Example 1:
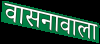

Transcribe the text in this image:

वासनावाला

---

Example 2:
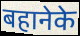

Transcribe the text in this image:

बहानेके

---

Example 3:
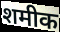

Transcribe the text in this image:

शमीक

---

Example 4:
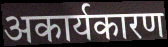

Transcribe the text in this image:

अकार्यकारण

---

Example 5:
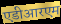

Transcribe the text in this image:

एडीआरएम